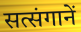
सत्संगानें